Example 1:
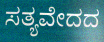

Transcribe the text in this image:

ಸತ್ಯವೇದದ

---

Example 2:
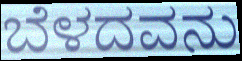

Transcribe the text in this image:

ಬೆಳದವನು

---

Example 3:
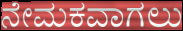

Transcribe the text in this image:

ನೇಮಕವಾಗಲು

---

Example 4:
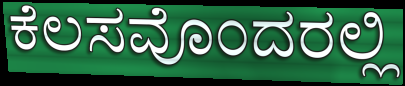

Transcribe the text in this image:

ಕೆಲಸವೊಂದರಲ್ಲಿ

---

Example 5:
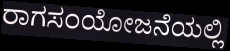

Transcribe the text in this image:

ರಾಗಸಂಯೋಜನೆಯಲ್ಲಿ